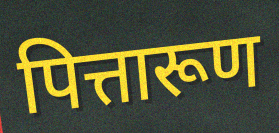
पित्तारूण